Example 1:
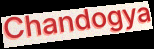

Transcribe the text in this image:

Chandogya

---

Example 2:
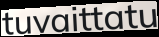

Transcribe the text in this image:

tuvaittatu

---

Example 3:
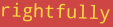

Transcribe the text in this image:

rightfully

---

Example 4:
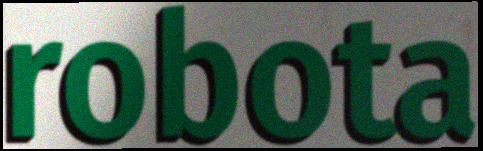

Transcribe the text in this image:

robota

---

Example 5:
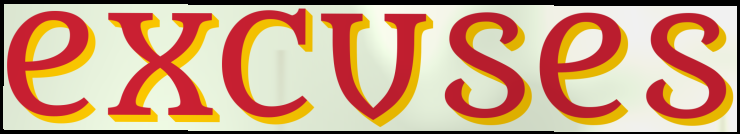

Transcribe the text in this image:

excuses